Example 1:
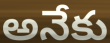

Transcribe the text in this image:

అనేకు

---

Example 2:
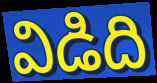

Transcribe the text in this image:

విడిది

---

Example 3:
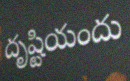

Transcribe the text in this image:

దృష్టియందు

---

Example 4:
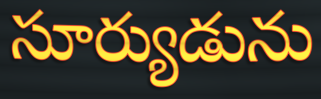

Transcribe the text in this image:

సూర్యుడును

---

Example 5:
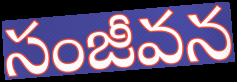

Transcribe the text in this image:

సంజీవన